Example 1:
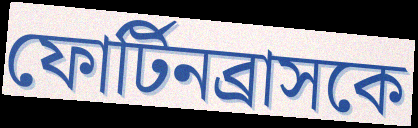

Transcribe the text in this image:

ফোর্টিনব্রাসকে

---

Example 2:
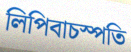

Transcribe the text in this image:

লিপিবাচস্পতি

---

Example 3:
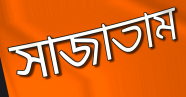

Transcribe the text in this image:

সাজাতাম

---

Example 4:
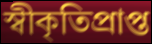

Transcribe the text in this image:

স্বীকৃতিপ্রাপ্ত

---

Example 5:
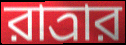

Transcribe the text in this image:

রাত্রার